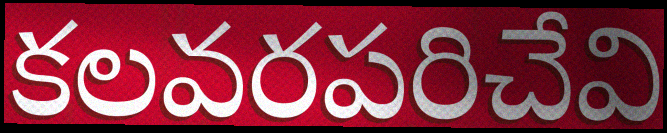
కలవరపరిచేవి